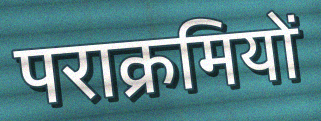
पराक्रमियों